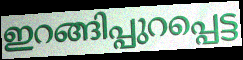
ഇറങ്ങിപ്പുറപ്പെട്ട